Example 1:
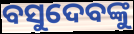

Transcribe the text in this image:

ବସୁଦେବଙ୍କୁ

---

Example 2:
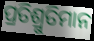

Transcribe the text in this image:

ପ୍ରତିଶ୍ରୁତିମାନ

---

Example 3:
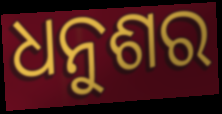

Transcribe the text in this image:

ଧନୁଶର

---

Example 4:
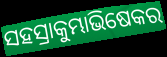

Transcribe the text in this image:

ସହସ୍ରାକୁମ୍ଭାଭିଷେକର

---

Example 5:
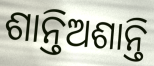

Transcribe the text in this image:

ଶାନ୍ତିଅଶାନ୍ତି